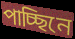
পাচ্ছিনে